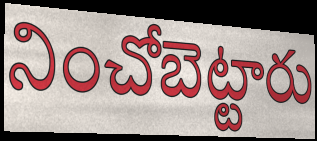
నించోబెట్టారు